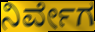
ನಿರ್ವೇಗ